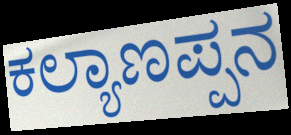
ಕಲ್ಯಾಣಪ್ಪನ